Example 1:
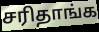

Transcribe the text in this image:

சரிதாங்க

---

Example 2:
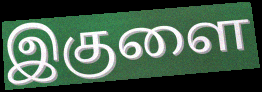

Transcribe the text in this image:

இகுளை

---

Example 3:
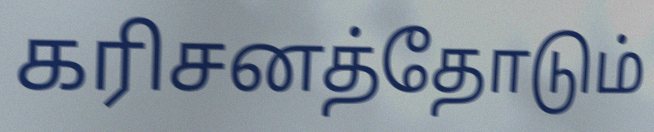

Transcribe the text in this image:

கரிசனத்தோடும்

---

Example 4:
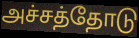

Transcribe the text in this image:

அச்சத்தோடு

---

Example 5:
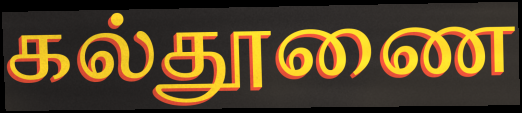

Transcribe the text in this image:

கல்தூணை